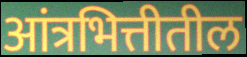
आंत्रभित्तीतील